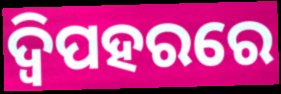
ଦ୍ୱିପହରରେ